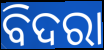
ବିଦରା